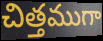
చిత్తముగా